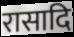
रासादि